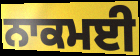
ਨਾਕਮਈ